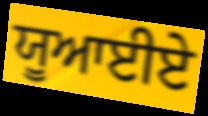
ਯੂਆਈਏ